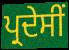
ਪ੍ਰਦੇਸੀਂ